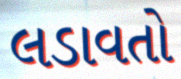
લડાવતો